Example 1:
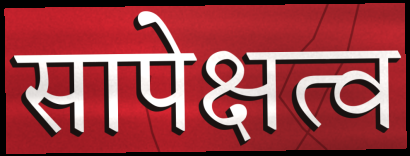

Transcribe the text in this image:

सापेक्षत्व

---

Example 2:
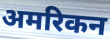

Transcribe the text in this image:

अमरिकन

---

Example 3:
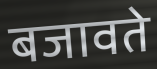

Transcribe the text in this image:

बजावते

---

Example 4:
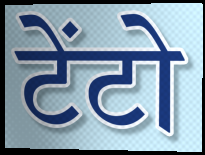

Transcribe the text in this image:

टेंटो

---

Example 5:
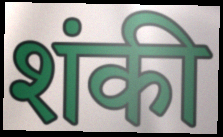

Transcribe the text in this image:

शंकी